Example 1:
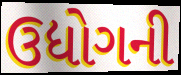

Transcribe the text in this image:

ઉદ્યોગની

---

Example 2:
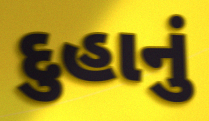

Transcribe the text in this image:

દુહાનું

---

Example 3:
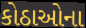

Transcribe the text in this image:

કોઠાઓના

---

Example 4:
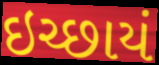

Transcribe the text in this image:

ઇચ્છાયં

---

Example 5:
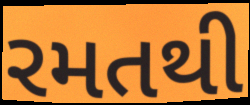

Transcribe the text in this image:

રમતથી